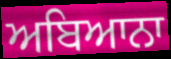
ਅਬਿਆਨਾ